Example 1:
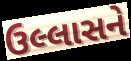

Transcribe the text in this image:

ઉલ્લાસને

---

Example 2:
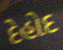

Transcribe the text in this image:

દેહોદ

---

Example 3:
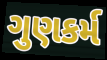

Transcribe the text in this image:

ગુણકર્મ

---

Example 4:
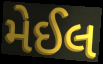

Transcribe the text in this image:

મેઈલ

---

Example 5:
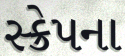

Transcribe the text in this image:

સ્ક્રેપના